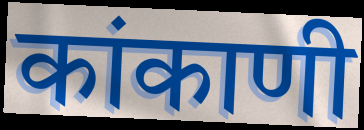
कांकाणी